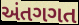
અંતગગત